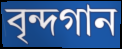
বৃন্দগান